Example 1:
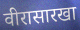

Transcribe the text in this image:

वीरासारखा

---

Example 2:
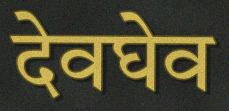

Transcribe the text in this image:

देवघेव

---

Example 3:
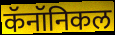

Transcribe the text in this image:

कॅनॉनिकल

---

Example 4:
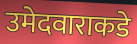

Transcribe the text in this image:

उमेदवाराकडे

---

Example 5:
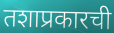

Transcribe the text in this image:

तशाप्रकारची